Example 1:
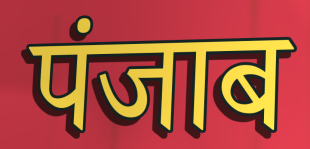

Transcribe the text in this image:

पंजाब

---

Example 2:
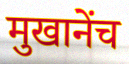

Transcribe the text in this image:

मुखानेंच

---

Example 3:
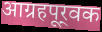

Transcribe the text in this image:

आग्रहपूर्वक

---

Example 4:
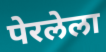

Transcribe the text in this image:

पेरलेला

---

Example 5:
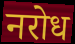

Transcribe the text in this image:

नरोध